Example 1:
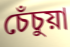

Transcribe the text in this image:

চেঁচুয়া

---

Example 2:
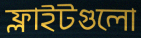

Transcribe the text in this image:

ফ্লাইটগুলো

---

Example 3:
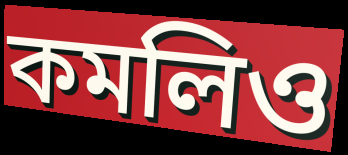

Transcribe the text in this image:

কমলিও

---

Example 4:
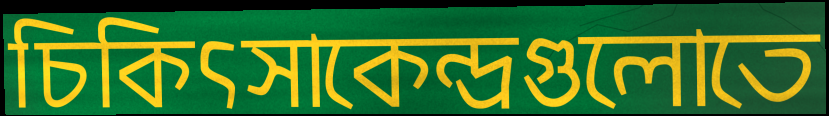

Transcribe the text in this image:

চিকিৎসাকেন্দ্রগুলোতে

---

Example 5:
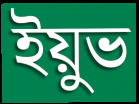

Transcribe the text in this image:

ইয়ুভ